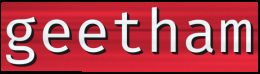
geetham